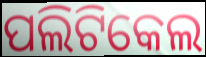
ପଲିଟିକେଲ